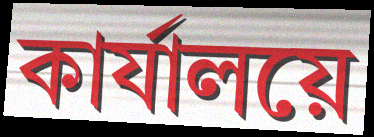
কার্যালয়ে